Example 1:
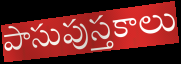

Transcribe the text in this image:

పాసుపుస్తకాలు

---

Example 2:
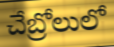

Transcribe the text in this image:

చేబ్రోలులో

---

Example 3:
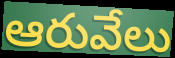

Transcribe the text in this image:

ఆరువేలు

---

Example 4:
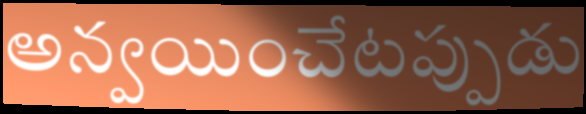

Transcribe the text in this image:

అన్వయించేటప్పుడు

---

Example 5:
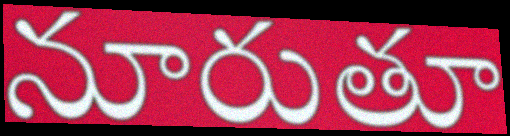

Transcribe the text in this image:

నూరుతూ